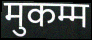
मुकम्म